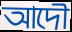
আদৌ